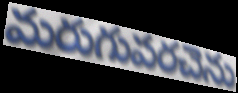
మరుగుపరచెను